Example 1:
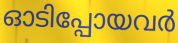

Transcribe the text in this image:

ഓടിപ്പോയവർ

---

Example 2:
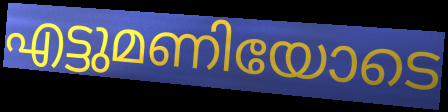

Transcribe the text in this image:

എട്ടുമണിയോടെ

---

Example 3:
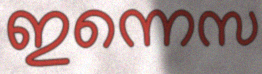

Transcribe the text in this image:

ഇന്നെസ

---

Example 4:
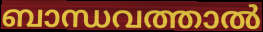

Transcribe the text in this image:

ബാന്ധവത്താൽ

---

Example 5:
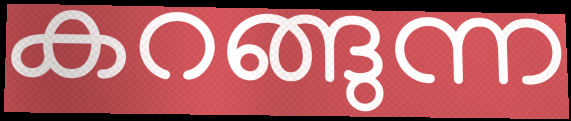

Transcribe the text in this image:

കറങ്ങുന്ന